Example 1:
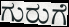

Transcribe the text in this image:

ಗುರುಗೆ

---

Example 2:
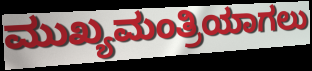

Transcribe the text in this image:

ಮುಖ್ಯಮಂತ್ರಿಯಾಗಲು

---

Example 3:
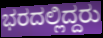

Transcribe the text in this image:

ಭರದಲ್ಲಿದ್ದರು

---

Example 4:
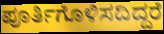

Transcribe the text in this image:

ಪೂರ್ತಿಗೊಳಿಸದಿದ್ದರೆ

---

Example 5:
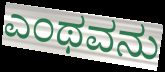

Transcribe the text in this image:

ಎಂಥವನು